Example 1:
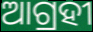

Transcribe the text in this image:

ଆଗ୍ରହୀ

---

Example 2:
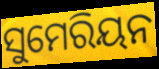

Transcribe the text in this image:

ସୁମେରିୟନ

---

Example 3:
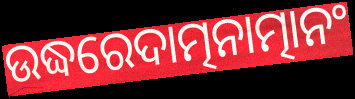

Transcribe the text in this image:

ଉଦ୍ଧରେଦାତ୍ମନାତ୍ମାନଂ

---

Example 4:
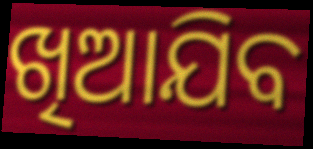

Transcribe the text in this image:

ଖିଆଯିବ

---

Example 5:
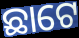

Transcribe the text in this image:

ଛାଟେ